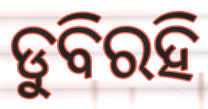
ଡୁବିରହି